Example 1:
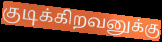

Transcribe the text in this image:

குடிக்கிறவனுக்கு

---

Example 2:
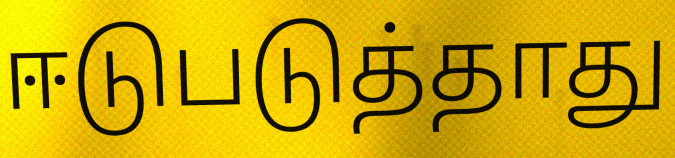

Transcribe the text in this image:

ஈடுபடுத்தாது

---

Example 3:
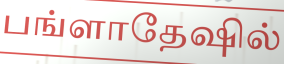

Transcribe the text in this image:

பங்ளாதேஷில்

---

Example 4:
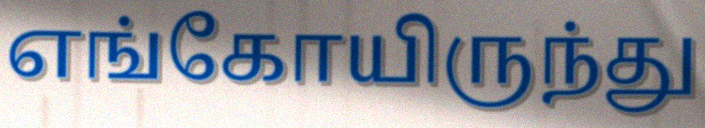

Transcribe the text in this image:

எங்கோயிருந்து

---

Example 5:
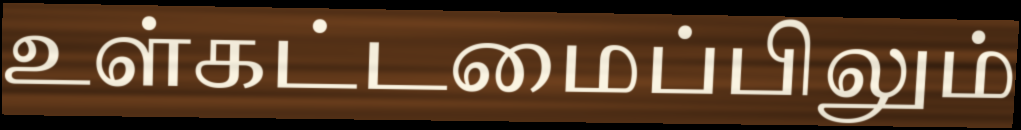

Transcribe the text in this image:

உள்கட்டமைப்பிலும்